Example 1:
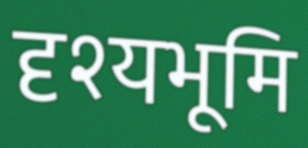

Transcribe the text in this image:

दृश्यभूमि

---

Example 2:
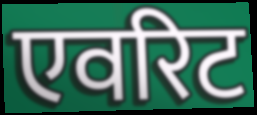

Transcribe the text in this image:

एवरिट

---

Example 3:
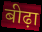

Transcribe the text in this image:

बीढ़ा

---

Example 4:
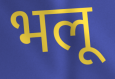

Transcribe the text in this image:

भलू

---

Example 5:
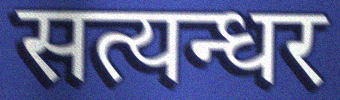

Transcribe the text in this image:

सत्यन्धर